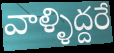
వాళ్ళిద్దరే